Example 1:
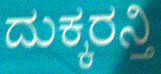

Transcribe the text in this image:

ದುಕ್ಕರನ್ತಿ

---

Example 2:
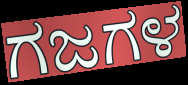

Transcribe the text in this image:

ಗಜಗಳ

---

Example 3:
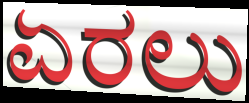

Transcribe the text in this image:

ಏರಲು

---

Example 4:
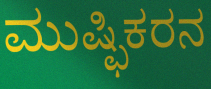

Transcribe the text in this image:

ಮುಷ್ಫಿಕರನ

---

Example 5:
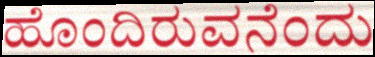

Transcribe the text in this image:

ಹೊಂದಿರುವನೆಂದು